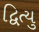
દ્વિત્યુ